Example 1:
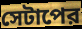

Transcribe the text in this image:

সেটাপের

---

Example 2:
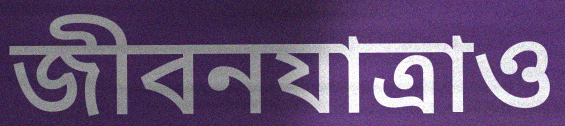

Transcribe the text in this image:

জীবনযাত্রাও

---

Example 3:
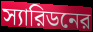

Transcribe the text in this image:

স্যারিডনের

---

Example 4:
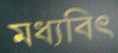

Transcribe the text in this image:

মধ্যবিৎ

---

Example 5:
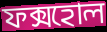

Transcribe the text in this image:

ফক্সহোল